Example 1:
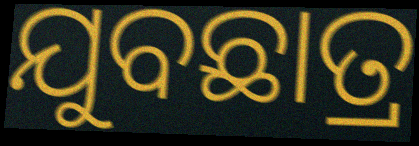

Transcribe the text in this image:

ଯୁବଛାତ୍ର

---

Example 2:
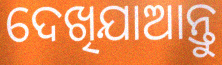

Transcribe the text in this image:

ଦେଖିଯାଆନ୍ତୁ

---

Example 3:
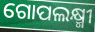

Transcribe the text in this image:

ଗୋପଲକ୍ଷ୍ମୀ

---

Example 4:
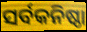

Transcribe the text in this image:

ସର୍ବକନିଷ୍ଠା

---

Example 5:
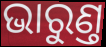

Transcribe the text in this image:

ଭାରୁଣ୍ତ